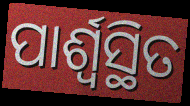
ପାର୍ଶ୍ୱସ୍ଥିତ